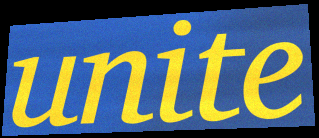
unite